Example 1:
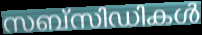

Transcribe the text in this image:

സബ്സിഡികൾ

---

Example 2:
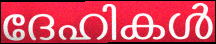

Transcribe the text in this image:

ദേഹികൾ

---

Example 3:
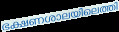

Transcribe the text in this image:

ഭക്ഷണശാലയിലെത്തി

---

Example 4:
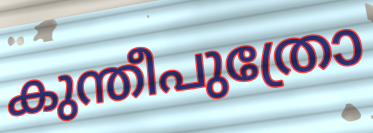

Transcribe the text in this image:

കുന്തീപുത്രോ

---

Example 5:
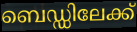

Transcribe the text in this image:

ബെഡ്ഡിലേക്ക്